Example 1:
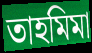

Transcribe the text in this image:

তাহমিমা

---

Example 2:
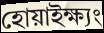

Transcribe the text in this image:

হোয়াইক্ষ্যং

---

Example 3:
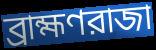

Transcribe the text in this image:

ব্রাহ্মণরাজা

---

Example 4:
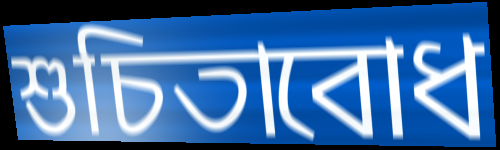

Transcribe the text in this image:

শুচিতাবোধ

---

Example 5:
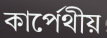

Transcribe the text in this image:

কার্পেথীয়